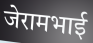
जेरामभाई